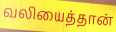
வலியைத்தான்